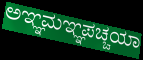
ಅಞ್ಞಮಞ್ಞಪಚ್ಚಯಾ